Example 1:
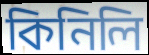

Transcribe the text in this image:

কিনিলি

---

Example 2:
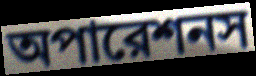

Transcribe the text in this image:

অপারেশনস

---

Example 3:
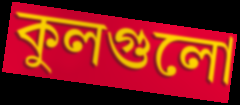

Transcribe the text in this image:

কুলগুলো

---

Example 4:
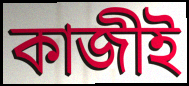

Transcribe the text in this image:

কাজীই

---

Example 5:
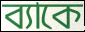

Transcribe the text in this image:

ব্যাকে